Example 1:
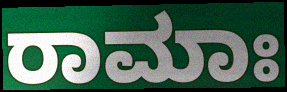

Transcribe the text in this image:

ರಾಮಾಃ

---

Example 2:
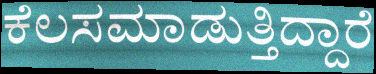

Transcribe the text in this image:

ಕೆಲಸಮಾಡುತ್ತಿದ್ದಾರೆ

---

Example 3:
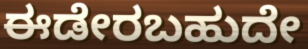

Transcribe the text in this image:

ಈಡೇರಬಹುದೇ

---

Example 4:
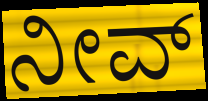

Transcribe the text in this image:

ನೀವ್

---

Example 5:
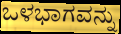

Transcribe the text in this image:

ಒಳಭಾಗವನ್ನು